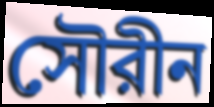
সৌরীন